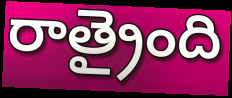
రాత్రైంది